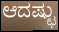
ಆದಷ್ಟು